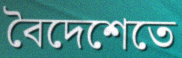
বৈদেশেতে